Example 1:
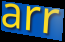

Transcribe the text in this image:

arr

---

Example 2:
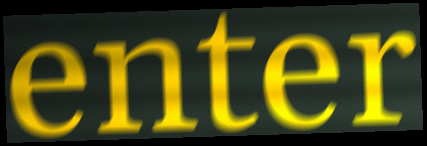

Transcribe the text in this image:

enter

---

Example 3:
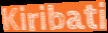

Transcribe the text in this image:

Kiribati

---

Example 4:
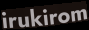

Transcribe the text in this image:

irukirom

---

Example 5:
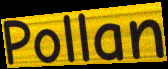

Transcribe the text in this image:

Pollan